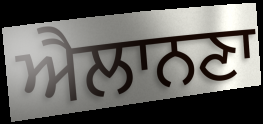
ਐਲਾਨਣਾ